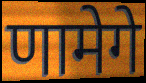
णामेगे